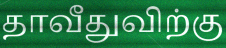
தாவீதுவிற்கு